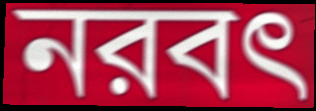
নরবৎ